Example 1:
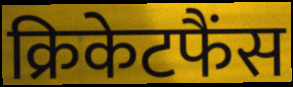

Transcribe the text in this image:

क्रिकेटफैंस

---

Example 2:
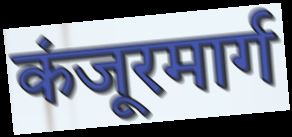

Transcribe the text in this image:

कंजूरमार्ग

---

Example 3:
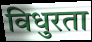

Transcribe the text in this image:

विधुरता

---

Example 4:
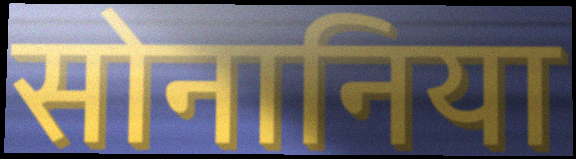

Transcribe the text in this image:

सोनानिया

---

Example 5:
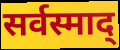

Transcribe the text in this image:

सर्वस्माद्